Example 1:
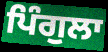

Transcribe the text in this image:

ਪਿੰਗੁਲਾ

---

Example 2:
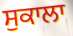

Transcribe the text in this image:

ਸੁਕਾਲਾ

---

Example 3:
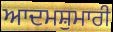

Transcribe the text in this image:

ਆਦਮਸ਼ੁਮਾਰੀ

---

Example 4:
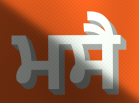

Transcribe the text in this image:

ਮਸੈ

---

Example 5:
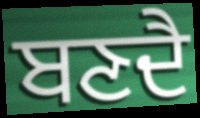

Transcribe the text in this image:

ਬਣਦੈ